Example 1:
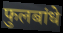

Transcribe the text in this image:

फुलबांधे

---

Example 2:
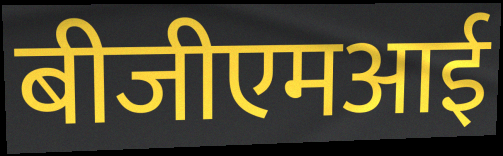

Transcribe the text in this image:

बीजीएमआई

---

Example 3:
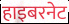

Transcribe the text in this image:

हाइबरनेट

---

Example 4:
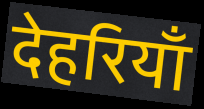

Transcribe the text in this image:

देहरियाँ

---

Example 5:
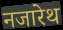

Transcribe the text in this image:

नजारेथ